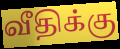
வீதிக்கு